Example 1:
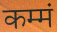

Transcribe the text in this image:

कम्मं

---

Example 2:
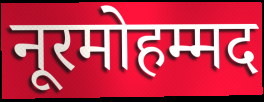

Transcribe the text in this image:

नूरमोहम्मद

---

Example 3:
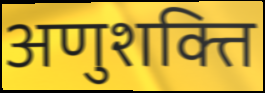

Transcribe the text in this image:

अणुशक्ति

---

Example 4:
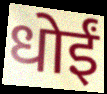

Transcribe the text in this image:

धोईं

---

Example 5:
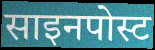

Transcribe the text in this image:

साइनपोस्ट